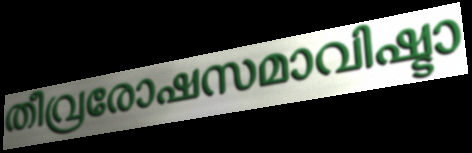
തീവ്രരോഷസമാവിഷ്ടാ